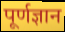
पूर्णज्ञान